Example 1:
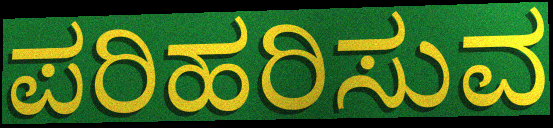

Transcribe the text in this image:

ಪರಿಹರಿಸುವ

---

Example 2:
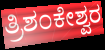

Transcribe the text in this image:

ತ್ರಿಶಂಕೇಶ್ವರ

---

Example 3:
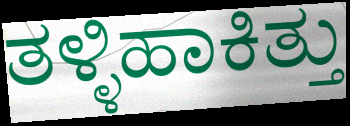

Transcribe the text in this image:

ತಳ್ಳಿಹಾಕಿತ್ತು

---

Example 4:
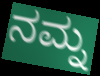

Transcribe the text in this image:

ನಮ್ನ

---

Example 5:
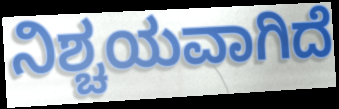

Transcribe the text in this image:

ನಿಶ್ಚಯವಾಗಿದೆ